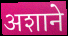
अशाने